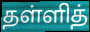
தள்ளித்